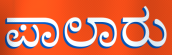
ಪಾಲಾರು